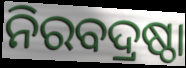
ନିରବଦ୍ରଷ୍ଠା